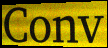
Conv